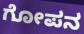
ಗೋಪನ